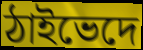
ঠাইভেদে